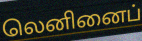
லெனினைப்